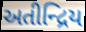
અતીન્દ્રિય